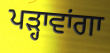
ਪੜ੍ਹਾਵਾਂਗਾ